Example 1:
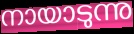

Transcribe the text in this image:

നായാടുന്നു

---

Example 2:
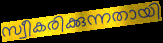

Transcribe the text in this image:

സ്വീകരിക്കുന്നതായി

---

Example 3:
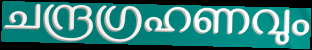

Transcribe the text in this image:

ചന്ദ്രഗ്രഹണവും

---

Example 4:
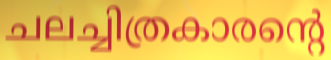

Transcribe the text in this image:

ചലച്ചിത്രകാരന്റെ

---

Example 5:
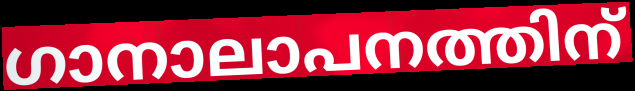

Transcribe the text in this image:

ഗാനാലാപനത്തിന്